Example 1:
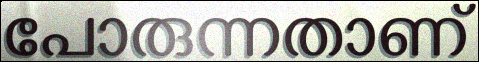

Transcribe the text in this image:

പോരുന്നതാണ്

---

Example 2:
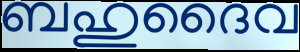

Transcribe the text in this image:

ബഹുദൈവ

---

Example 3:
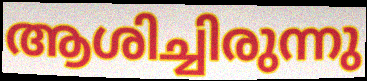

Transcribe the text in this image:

ആശിച്ചിരുന്നു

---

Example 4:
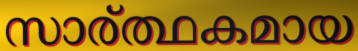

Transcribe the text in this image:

സാര്ത്ഥകമായ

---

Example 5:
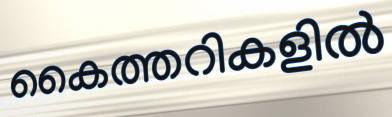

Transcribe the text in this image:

കൈത്തറികളിൽ